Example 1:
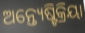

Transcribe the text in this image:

ଅନ୍ତ୍ୟେଷ୍ଟିକ୍ରିୟା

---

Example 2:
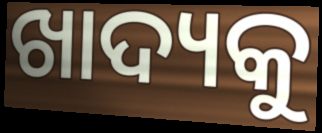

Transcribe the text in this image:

ଖାଦ୍ୟକୁ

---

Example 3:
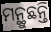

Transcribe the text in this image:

ମନ୍ଥୁଛନ୍ତି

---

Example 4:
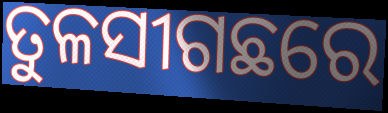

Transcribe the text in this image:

ତୁଳସୀଗଛରେ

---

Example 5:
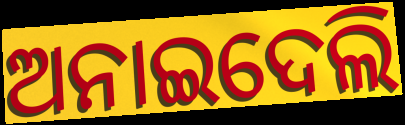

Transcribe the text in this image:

ଅନାଇଦେଲି